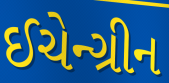
ઈચેન્ગ્રીન